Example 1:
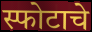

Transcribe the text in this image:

स्फोटाचे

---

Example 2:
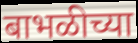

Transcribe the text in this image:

बाभळीच्या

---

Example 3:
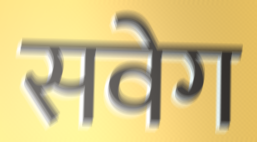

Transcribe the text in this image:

सवेग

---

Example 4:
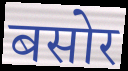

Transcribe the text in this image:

बसोर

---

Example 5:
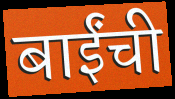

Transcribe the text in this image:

बाईंची